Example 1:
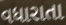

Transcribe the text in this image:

વધારાતા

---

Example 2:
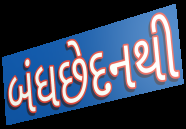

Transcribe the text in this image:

બંધછેદનથી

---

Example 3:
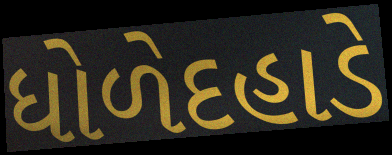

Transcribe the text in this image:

ધોળેદહાડે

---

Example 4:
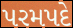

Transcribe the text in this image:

પરમપદે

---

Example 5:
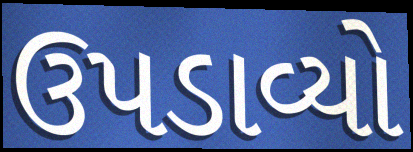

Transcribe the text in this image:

ઉપડાવ્યો